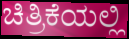
ಚಿತ್ರಿಕೆಯಲ್ಲಿ